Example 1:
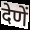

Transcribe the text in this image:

देणें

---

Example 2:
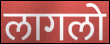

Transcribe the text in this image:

लागलो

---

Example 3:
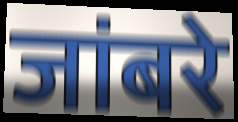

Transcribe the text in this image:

जांबरे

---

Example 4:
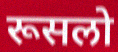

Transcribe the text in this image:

रूसलो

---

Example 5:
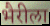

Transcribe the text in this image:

भैरीला